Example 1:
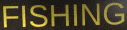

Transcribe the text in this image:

FISHING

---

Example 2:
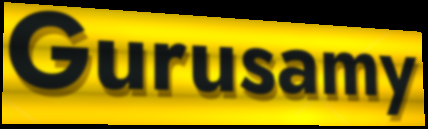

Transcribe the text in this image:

Gurusamy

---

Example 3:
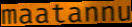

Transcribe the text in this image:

maatannu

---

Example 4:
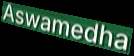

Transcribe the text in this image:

Aswamedha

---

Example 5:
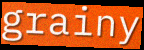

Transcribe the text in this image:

grainy